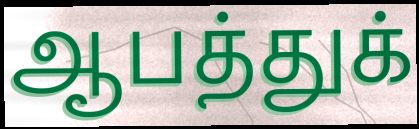
ஆபத்துக்